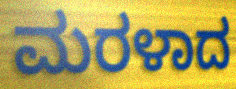
ಮರಳಾದ